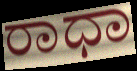
ರಾಧಾ